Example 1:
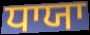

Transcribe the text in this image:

ਧਾਯਾ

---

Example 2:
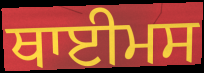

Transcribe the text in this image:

ਥਾਈਮਸ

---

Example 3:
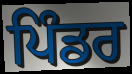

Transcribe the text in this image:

ਪਿੰਡਰ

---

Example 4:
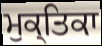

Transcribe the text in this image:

ਮੁਕ੍ਤਿਕਾ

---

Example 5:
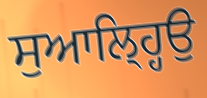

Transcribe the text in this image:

ਸੁਆਲ੍ਹ੍ਹਿਉ